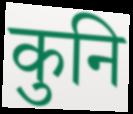
कुनि